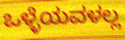
ಒಳ್ಳೆಯವಳಲ್ಲ